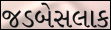
જડબેસલાક